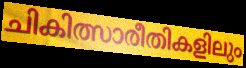
ചികിത്സാരീതികളിലും